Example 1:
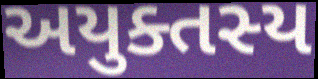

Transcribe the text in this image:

અયુક્તસ્ય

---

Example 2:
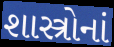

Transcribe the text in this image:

શાસ્ત્રોનાં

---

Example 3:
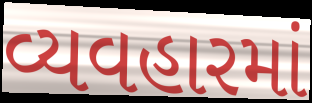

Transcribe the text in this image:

વ્યવહારમાં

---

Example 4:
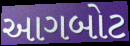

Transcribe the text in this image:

આગબોટ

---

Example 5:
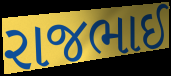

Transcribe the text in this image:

રાજભાઈ